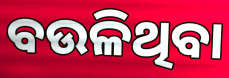
ବଉଳିଥିବା